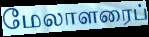
மேலாளரைப்